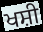
ਖਸ਼ੀ